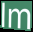
Im